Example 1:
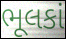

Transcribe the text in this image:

ભૂલકાં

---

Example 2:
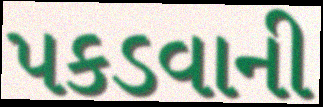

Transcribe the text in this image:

પકડવાની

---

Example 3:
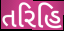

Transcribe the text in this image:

તરિહિ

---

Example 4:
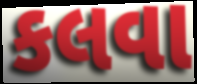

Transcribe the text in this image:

કલવા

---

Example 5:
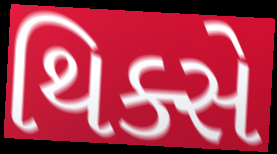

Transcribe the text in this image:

થિક્સે